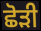
ਛੋੜੀ